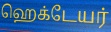
ஹெக்டேயர்